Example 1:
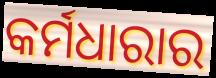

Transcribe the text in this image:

କର୍ମଧାରାର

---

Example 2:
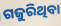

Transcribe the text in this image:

ଗଜୁରିଥିବା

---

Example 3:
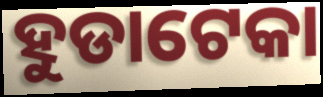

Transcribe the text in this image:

ହୁଡାଟେକା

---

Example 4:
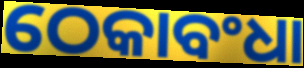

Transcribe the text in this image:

ଠେକାବଂଧା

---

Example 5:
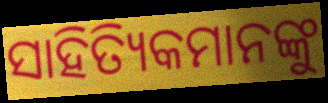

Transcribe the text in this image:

ସାହିତ୍ୟିକମାନଙ୍କୁ